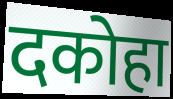
दकोहा